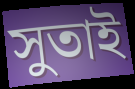
সুতাই